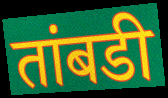
तांबडी